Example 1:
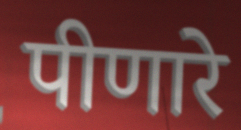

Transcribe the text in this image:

पीणारे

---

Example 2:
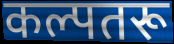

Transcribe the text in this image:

कल्पतरू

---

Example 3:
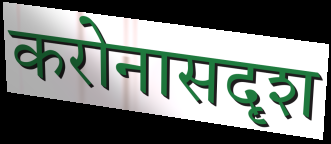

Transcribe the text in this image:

करोनासदृश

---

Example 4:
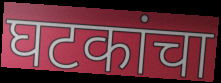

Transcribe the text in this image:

घटकांचा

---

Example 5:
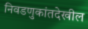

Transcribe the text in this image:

निवडणुकांतदेखील